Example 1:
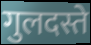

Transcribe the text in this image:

गुलदस्ते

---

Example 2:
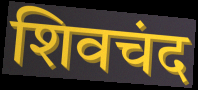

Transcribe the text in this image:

शिवचंद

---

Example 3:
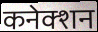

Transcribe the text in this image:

कनेक्‍शन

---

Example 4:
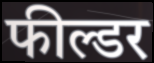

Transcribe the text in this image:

फील्डर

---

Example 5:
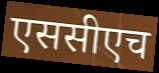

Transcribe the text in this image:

एससीएच